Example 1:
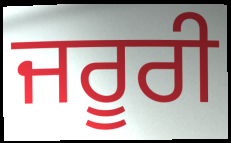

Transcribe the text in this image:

ਜਰੂਰੀ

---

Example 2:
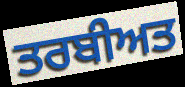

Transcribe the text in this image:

ਤਰਬੀਅਤ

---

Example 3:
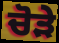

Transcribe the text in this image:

ਚੋੜੇ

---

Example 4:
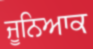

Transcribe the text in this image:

ਜੂਨਿਆਕ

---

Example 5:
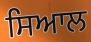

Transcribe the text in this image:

ਸਿਆਲ